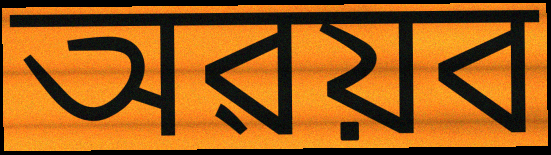
অৱয়ব